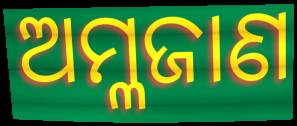
ଅମ୍ଳଜାଣ